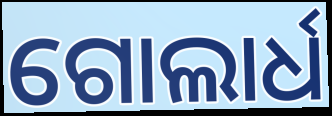
ଗୋଲାର୍ଧ